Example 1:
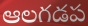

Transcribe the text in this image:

ఆలగడప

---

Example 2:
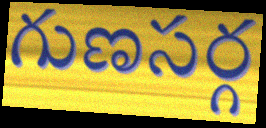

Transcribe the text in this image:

గుణసర్గ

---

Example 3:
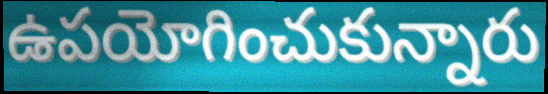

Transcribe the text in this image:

ఉపయోగించుకున్నారు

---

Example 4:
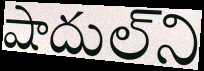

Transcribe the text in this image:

షాదుల్‌ని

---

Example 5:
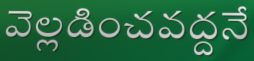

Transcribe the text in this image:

వెల్లడించవద్దనే